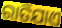
ରାତିଯାଏ